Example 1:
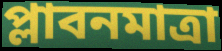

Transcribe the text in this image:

প্লাবনমাত্রা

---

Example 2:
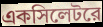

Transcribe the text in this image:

একসিলেটরে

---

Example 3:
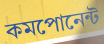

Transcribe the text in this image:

কমপোনেন্ট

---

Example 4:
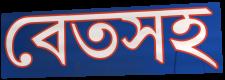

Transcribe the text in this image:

বেতসহ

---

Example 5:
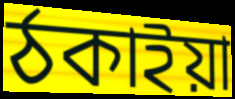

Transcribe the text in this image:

ঠকাইয়া